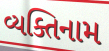
વ્યક્તિનામ